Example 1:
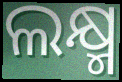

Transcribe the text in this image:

ଲକ୍ଷ୍ମ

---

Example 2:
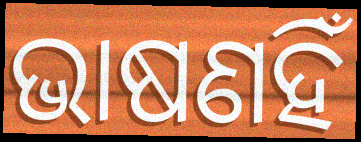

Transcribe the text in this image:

ଭାଷଣହିଁ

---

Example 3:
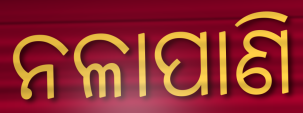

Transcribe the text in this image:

ନଳାପାଣି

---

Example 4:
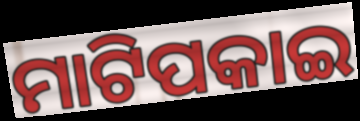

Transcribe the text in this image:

ମାଟିପକାଇ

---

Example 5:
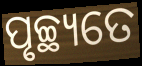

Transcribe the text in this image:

ପୃଚ୍ଛ୍ୟତେ